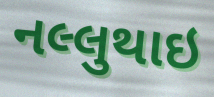
નલ્લુથાઇ